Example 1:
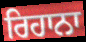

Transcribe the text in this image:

ਰਿਹਾਨਾ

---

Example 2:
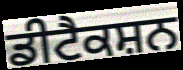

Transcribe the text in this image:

ਡੀਟੈਕਸ਼ਨ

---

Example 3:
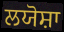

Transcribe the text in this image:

ਲਯੋਸ਼ਾ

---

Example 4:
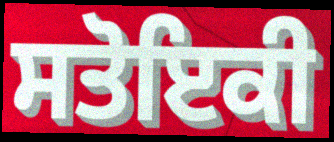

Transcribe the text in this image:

ਸਤੋਇਕੀ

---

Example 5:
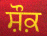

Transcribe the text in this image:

ਸ਼ੌਕ਼